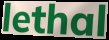
lethal